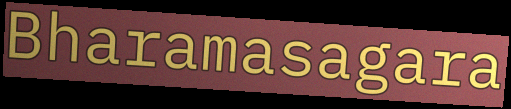
Bharamasagara